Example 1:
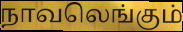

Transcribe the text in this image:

நாவலெங்கும்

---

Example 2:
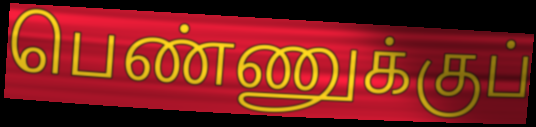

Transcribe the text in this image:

பெண்ணுக்குப்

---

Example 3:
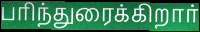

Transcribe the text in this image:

பரிந்துரைக்கிறார்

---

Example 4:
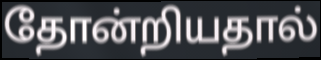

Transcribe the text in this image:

தோன்றியதால்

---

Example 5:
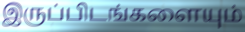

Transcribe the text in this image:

இருப்பிடங்களையும்